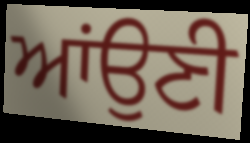
ਆਂਉਣੀ